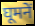
घूमनें